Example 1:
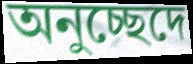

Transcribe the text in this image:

অনুচ্ছেদে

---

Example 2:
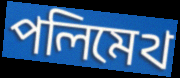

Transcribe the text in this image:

পলিমেথ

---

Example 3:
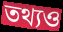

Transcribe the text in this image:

তথ্যও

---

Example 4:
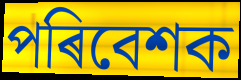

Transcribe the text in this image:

পৰিবেশক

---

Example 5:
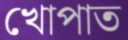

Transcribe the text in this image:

খোপাত